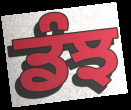
ਡੰਝ